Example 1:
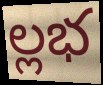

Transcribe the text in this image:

ల్లభ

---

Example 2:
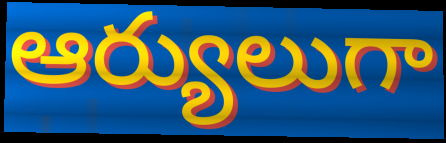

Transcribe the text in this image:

ఆర్యులుగా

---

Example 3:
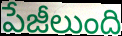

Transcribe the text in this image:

పేజీలుంది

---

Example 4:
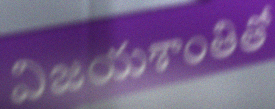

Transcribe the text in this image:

విజయశాంతితో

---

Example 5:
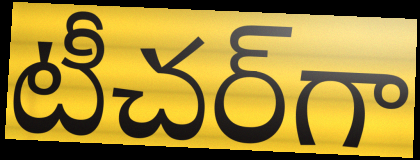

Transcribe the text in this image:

టీచర్‌గా